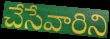
చేసేవారిని